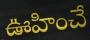
ఊహించే